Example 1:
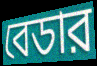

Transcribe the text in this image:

বেডার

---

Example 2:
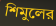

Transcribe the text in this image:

শিমুলের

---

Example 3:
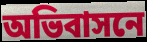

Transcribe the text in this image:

অভিবাসনে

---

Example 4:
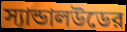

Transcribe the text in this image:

স্যান্ডালউডের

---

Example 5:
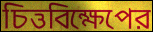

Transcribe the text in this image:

চিত্তবিক্ষেপের